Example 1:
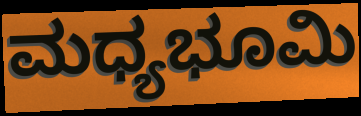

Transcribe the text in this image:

ಮಧ್ಯಭೂಮಿ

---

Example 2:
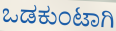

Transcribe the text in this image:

ಒಡಕುಂಟಾಗಿ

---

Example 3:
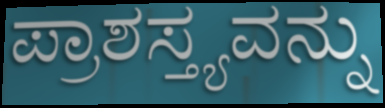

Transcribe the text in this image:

ಪ್ರಾಶಸ್ತ್ಯವನ್ನು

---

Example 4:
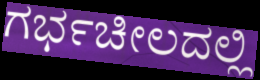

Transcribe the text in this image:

ಗರ್ಭಚೀಲದಲ್ಲಿ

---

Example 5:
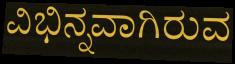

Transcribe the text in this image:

ವಿಭಿನ್ನವಾಗಿರುವ